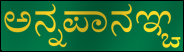
ಅನ್ನಪಾನಞ್ಚ